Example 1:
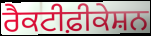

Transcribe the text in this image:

ਰੈਕਟੀਫ਼ੀਕੇਸ਼ਨ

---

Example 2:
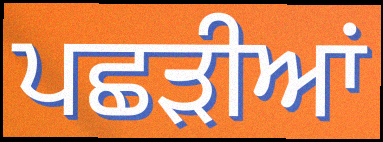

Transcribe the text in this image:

ਪਛੜੀਆਂ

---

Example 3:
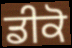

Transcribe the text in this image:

ਡੀਕੋ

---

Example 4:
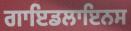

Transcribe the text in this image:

ਗਾਇਡਲਾਇਨਸ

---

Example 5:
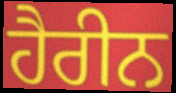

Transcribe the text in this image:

ਹੈਰੀਨ